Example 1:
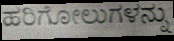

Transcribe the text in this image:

ಹರಿಗೋಲುಗಳನ್ನು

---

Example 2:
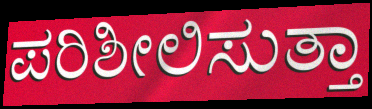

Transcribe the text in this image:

ಪರಿಶೀಲಿಸುತ್ತಾ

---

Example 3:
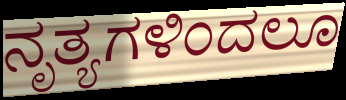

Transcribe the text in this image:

ನೃತ್ಯಗಳಿಂದಲೂ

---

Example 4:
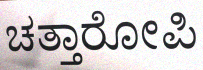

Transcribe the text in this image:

ಚತ್ತಾರೋಪಿ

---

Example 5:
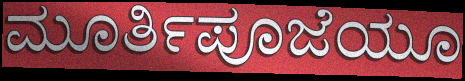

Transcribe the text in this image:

ಮೂರ್ತಿಪೂಜೆಯೂ